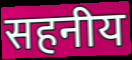
सहनीय